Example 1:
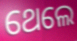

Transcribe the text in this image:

ଥେଲେ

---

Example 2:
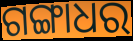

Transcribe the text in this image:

ଗଙ୍ଗାଧର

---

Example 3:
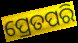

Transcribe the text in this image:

ପ୍ରେତପରି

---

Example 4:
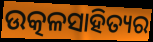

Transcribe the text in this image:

ଉତ୍କଳସାହିତ୍ୟର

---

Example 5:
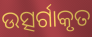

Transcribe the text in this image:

ଉତ୍ସର୍ଗାକୃତ